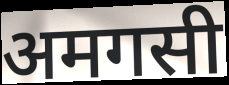
अमगसी